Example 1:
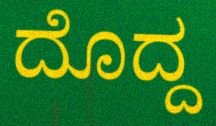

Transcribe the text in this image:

ದೊದ್ದ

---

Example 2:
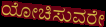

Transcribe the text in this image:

ಯೋಚಿಸುವರೇ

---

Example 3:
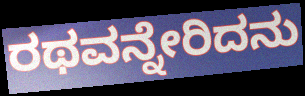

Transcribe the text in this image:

ರಥವನ್ನೇರಿದನು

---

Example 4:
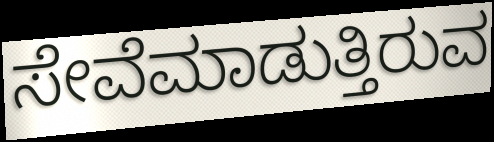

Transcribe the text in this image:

ಸೇವೆಮಾಡುತ್ತಿರುವ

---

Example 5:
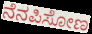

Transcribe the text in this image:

ನೆನಪಿಸೋಣ